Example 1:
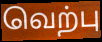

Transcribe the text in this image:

வெற்பு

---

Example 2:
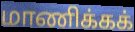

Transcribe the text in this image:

மாணிக்கக்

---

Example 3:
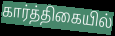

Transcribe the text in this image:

கார்த்திகையில்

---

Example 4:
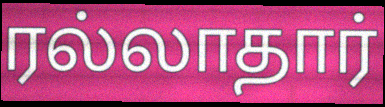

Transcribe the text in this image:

ரல்லாதார்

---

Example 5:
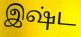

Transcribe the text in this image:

இஷ்ட